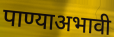
पाण्याअभावी